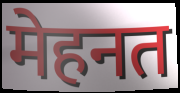
मेहनत